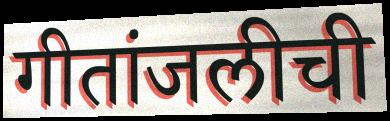
गीतांजलीची